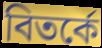
বিতর্কে